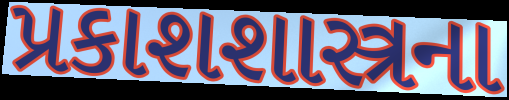
પ્રકાશશાસ્ત્રના